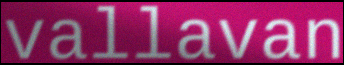
vallavan